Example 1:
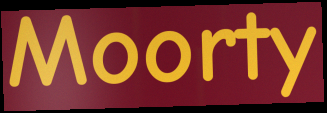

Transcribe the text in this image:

Moorty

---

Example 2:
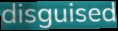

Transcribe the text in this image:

disguised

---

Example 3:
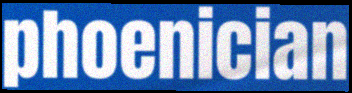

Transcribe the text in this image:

phoenician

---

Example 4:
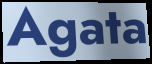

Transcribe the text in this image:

Agata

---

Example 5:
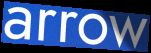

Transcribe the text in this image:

arrow